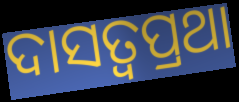
ଦାସତ୍ୱପ୍ରଥା